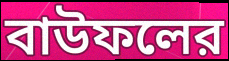
বাউফলের